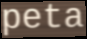
peta